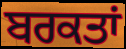
ਬਰਕਤਾਂ